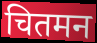
चितमन